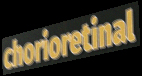
chorioretinal